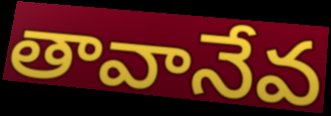
తావానేవ